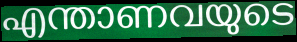
എന്താണവയുടെ